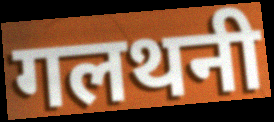
गलथनी